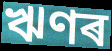
ঋণৰ